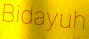
Bidayuh